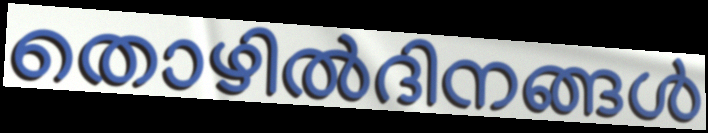
തൊഴിൽദിനങ്ങൾ